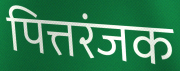
पित्तरंजक